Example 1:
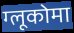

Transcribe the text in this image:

ग्लूकोमा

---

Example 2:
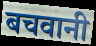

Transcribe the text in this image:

बचवानी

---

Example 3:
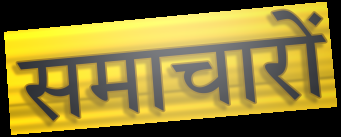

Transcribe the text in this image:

समाचारों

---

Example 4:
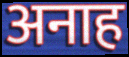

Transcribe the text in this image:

अनाह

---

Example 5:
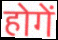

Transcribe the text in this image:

होगें